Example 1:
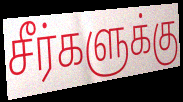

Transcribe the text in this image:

சீர்களுக்கு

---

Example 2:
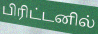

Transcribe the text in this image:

பிரிட்டனில்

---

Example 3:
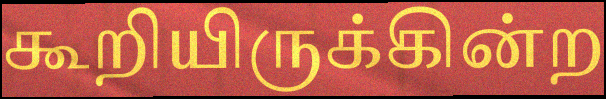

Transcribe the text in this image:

கூறியிருக்கின்ற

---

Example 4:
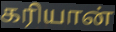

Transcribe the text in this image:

கரியான்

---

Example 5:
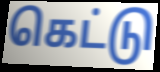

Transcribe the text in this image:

கெட்டு